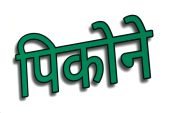
पिकोने